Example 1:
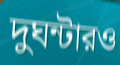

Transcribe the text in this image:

দুঘন্টারও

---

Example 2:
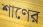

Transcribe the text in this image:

শাণের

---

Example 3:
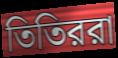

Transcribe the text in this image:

তিতিররা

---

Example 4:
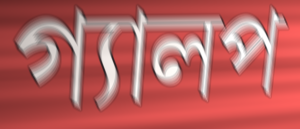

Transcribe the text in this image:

গ্যালপ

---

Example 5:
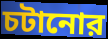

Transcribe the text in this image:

চটানোর